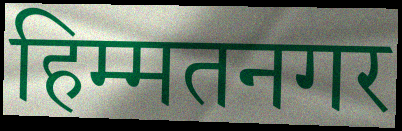
हिम्मतनगर